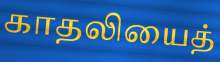
காதலியைத்